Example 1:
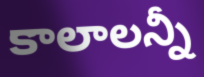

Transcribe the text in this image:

కాలాలన్నీ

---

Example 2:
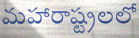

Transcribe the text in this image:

మహారాష్ట్రలలో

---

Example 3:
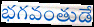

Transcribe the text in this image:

భగవంతుడే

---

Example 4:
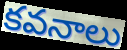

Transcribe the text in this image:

కవనాలు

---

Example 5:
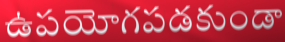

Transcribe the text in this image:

ఉపయోగపడకుండా